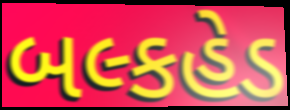
બલ્કહેડ